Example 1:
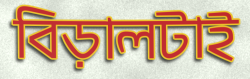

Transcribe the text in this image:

বিড়ালটাই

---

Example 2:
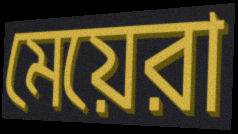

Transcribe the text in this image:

মেয়েরা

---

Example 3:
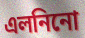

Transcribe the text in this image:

এলনিনো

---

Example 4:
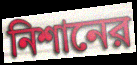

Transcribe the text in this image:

নিশানের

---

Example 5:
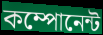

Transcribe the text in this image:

কম্পোনেন্ট